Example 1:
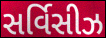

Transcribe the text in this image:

સર્વિસીઝ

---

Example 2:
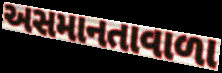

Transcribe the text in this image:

અસમાનતાવાળા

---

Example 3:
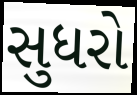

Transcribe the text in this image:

સુધરો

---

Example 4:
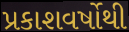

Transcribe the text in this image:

પ્રકાશવર્ષોથી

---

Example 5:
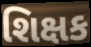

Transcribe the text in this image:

શિક્ષક